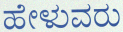
ಹೇಳುವರು